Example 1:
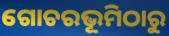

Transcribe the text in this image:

ଗୋଚରଭୂମିଠାରୁ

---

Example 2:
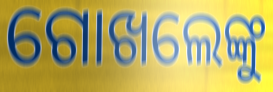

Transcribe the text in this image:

ଗୋଖଲେଙ୍କୁ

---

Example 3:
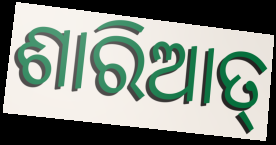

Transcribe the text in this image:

ଶାରିଆତ୍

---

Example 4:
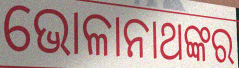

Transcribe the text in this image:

ଭୋଳାନାଥଙ୍କର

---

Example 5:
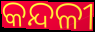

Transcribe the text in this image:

କନ୍ଦଳୀ